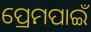
ପ୍ରେମପାଇଁ